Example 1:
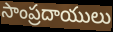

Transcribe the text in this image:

సాంప్రదాయులు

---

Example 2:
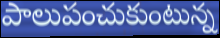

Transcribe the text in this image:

పాలుపంచుకుంటున్న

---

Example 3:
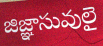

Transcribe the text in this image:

జిజ్ఞాసువులై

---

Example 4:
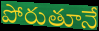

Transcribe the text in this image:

పోరుతూనే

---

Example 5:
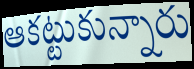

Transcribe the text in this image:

ఆకట్టుకున్నారు